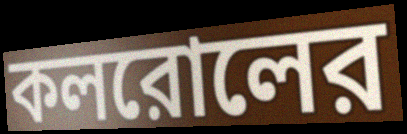
কলরোলের